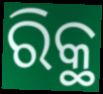
ରିକ୍ଥ